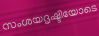
സംശയദൃഷ്ടിയോടെ